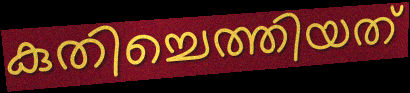
കുതിച്ചെത്തിയത്